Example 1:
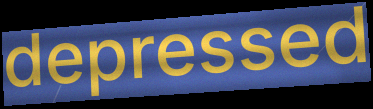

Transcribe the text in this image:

depressed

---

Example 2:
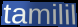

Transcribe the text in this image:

tamilil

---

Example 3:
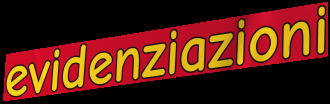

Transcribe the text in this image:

evidenziazioni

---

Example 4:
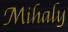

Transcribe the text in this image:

Mihaly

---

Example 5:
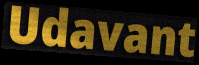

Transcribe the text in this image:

Udavant